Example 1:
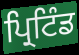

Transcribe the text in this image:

ਪ੍ਰਿਟਿੰਡ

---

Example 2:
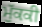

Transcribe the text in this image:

ਮੁੱਕਕੀ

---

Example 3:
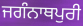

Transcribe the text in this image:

ਜਗੰਨਾਥਪੁਰੀ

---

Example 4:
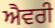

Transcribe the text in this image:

ਐਵਰੀ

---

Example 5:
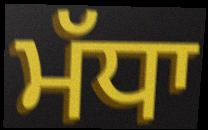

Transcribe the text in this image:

ਮੱਧਾ